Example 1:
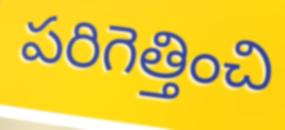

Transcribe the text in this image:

పరిగెత్తించి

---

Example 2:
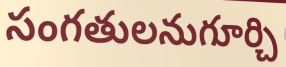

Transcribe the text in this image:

సంగతులనుగూర్చి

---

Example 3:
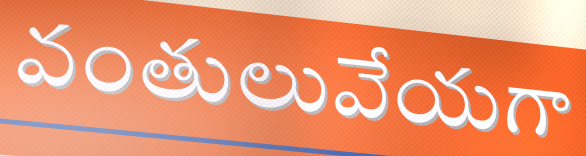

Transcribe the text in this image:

వంతులువేయగా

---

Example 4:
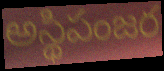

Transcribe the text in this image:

అస్థిపంజర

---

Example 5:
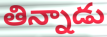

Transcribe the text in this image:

తిన్నాడు